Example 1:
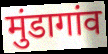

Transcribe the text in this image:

मुंडागांव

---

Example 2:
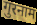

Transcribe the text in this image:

गुरनाम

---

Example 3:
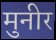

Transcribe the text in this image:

मुनीर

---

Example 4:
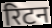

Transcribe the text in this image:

रिटन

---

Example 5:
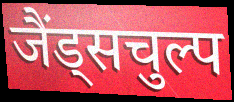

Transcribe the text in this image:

जैंड्सचुल्प